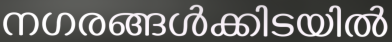
നഗരങ്ങൾക്കിടയിൽ